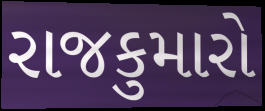
રાજકુમારો